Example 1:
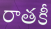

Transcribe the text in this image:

రాతకీ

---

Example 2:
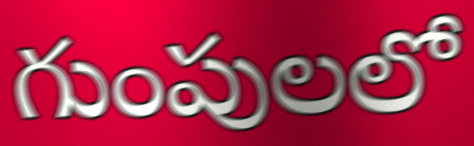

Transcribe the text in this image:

గుంపులలో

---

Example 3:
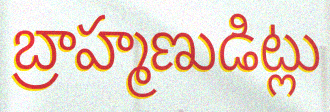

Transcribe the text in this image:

బ్రాహ్మణుడిట్లు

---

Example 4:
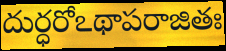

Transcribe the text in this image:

దుర్ధరోఽథాపరాజితః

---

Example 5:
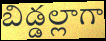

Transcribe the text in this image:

బిడ్డల్లాగా